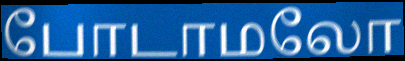
போடாமலோ